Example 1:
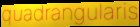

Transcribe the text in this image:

quadrangularis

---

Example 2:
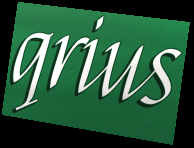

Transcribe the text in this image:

qrius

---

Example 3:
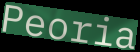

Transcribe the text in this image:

Peoria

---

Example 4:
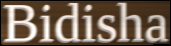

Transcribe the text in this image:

Bidisha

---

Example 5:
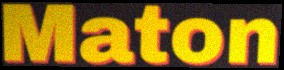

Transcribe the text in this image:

Maton